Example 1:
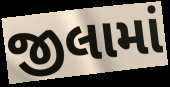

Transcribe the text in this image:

જીલામાં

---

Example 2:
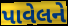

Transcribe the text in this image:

પાવેલને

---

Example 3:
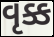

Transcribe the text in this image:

વૃક્ક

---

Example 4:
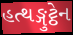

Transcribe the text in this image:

હત્થઙ્ગુટ્ઠેન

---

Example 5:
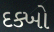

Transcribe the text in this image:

દક્ખો